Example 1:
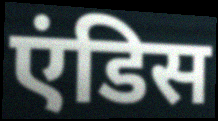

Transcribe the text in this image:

एंडिस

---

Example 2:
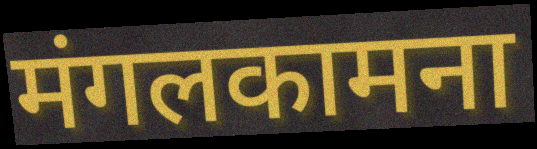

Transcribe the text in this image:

मंगलकामना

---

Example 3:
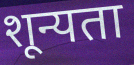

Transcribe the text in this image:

शून्‍यता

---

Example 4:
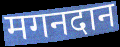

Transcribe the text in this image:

मगनदान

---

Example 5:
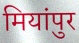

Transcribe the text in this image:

मियांपुर